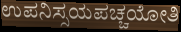
ಉಪನಿಸ್ಸಯಪಚ್ಚಯೋತಿ